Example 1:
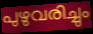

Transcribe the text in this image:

പുഴുവരിച്ചും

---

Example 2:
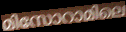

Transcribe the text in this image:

മിസോറാമിലെ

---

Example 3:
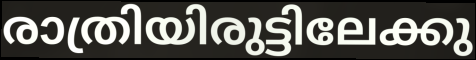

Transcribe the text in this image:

രാത്രിയിരുട്ടിലേക്കു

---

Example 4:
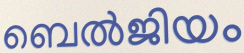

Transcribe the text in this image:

ബെൽജിയം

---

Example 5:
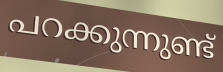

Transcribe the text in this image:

പറക്കുന്നുണ്ട്